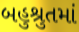
બહુશ્રુતમાં